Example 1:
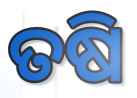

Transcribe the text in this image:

ତଷି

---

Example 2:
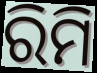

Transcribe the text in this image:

ରିମି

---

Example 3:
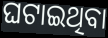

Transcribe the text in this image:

ଘଟାଇଥିବା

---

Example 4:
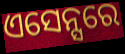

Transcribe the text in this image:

ଏସେନ୍ସରେ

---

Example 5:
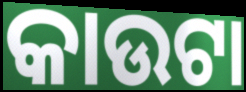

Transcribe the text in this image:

କାଉଟା